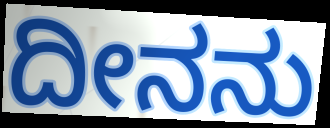
ದೀನನು